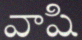
వాషి